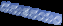
ದನುತನಯಂ